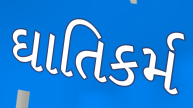
ઘાતિકર્મ